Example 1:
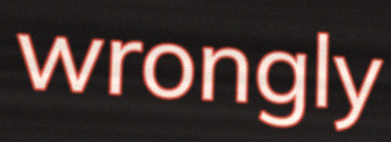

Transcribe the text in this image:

wrongly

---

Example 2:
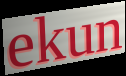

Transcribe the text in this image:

ekun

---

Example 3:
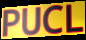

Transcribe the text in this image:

PUCL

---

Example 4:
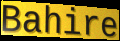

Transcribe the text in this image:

Bahire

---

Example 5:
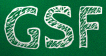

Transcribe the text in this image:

GSF